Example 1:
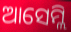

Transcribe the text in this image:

ଆସେମ୍ଲି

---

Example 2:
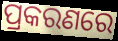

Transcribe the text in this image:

ପ୍ରକରଣରେ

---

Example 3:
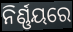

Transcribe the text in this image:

ନିର୍ଣ୍ଣୟରେ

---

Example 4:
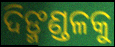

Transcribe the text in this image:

ଦିଙ୍ମଣ୍ଡଳକୁ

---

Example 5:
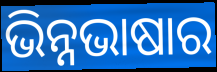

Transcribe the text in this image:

ଭିନ୍ନଭାଷାର